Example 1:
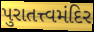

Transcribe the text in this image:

પુરાતત્ત્વમંદિર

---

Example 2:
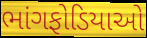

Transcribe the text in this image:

ભાંગફોડિયાઓ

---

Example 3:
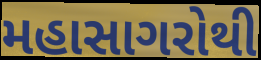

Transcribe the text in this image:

મહાસાગરોથી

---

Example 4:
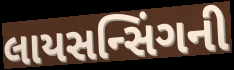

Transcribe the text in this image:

લાયસન્સિંગની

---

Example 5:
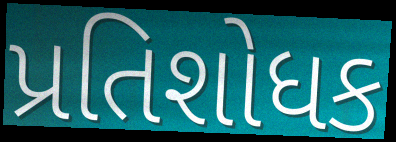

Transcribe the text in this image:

પ્રતિશોધક